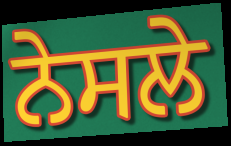
ਨੇਸਲੇ